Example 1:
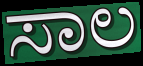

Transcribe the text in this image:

ಸಾಲ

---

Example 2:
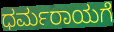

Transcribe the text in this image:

ಧರ್ಮರಾಯಗೆ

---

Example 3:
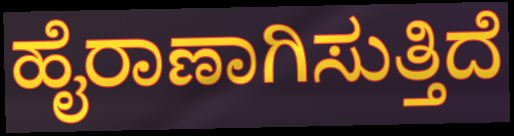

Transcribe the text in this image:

ಹೈರಾಣಾಗಿಸುತ್ತಿದೆ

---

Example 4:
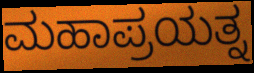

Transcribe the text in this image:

ಮಹಾಪ್ರಯತ್ನ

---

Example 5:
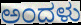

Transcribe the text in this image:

ಅಂದಳು